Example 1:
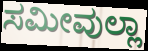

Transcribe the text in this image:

ಸಮೀವುಲ್ಲಾ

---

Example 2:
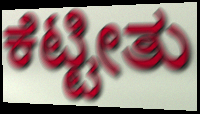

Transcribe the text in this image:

ಕೆಟ್ಟೀತು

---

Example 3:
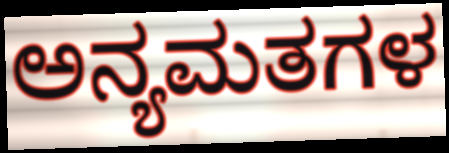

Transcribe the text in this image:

ಅನ್ಯಮತಗಳ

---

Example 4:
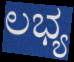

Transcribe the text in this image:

ಲಭ್ಯ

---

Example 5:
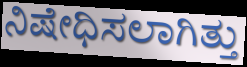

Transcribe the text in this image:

ನಿಷೇಧಿಸಲಾಗಿತ್ತು